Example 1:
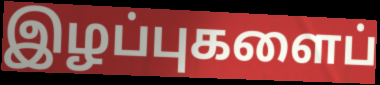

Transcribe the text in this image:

இழப்புகளைப்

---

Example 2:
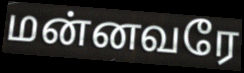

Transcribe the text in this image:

மன்னவரே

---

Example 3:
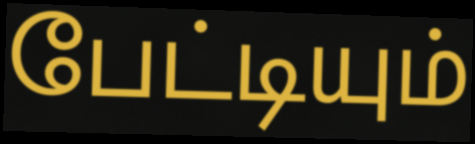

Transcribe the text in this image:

பேட்டியும்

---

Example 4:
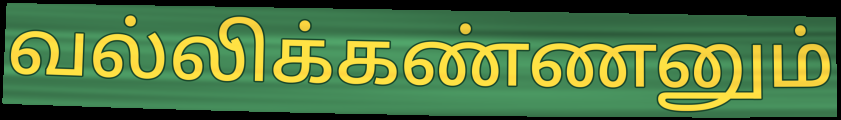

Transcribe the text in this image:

வல்லிக்கண்ணனும்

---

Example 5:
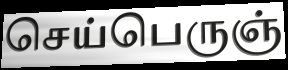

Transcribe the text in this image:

செய்பெருஞ்